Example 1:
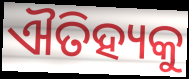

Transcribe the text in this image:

ଐତିହ୍ୟକୁ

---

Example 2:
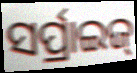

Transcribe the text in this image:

ସର୍ପ୍ରାଇଜ୍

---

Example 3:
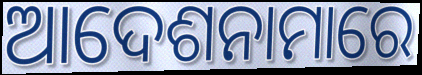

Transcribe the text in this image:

ଆଦେଶନାମାରେ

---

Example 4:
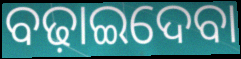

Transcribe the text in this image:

ବଢ଼ାଇଦେବା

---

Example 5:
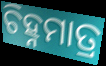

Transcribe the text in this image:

ଚିହ୍ନମାତ୍ର